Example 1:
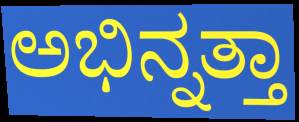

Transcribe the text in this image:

ಅಭಿನ್ನತ್ತಾ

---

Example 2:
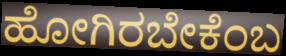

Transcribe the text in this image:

ಹೋಗಿರಬೇಕೆಂಬ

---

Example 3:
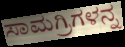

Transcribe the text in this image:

ಸಾಮಗ್ರಿಗಳನ್ನ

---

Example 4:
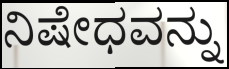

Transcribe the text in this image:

ನಿಷೇಧವನ್ನು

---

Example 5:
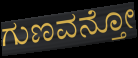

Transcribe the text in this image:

ಗುಣವನ್ತೋ